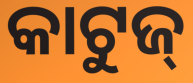
କାଟୁଜ୍